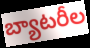
బ్యాటరీల